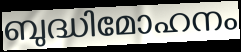
ബുദ്ധിമോഹനം